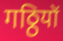
गठ्ठियों